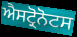
ਐਸਟ੍ਰੋਨੋਟਸ